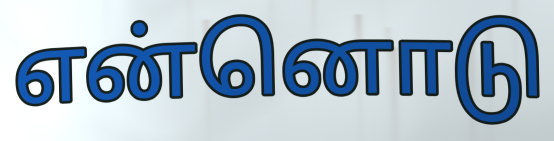
என்னொடு